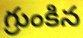
గ్రుంకిన